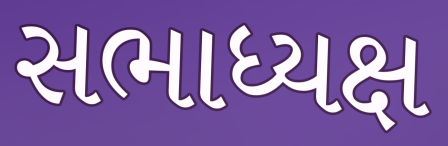
સભાધ્યક્ષ